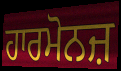
ਹਾਰਮੋਨਜ਼